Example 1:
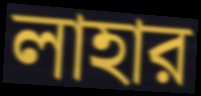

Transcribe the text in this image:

লাহার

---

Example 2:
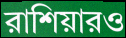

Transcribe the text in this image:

রাশিয়ারও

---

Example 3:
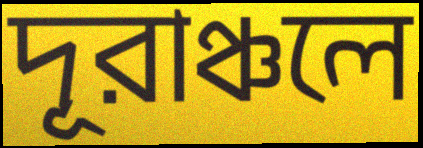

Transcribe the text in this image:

দূরাঞ্চলে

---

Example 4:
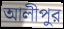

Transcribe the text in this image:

আলীপুর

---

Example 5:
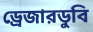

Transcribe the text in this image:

ড্রেজারডুবি